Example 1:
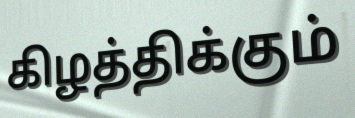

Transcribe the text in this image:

கிழத்திக்கும்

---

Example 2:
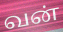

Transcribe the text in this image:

வன்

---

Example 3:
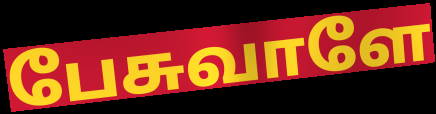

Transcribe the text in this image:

பேசுவாளே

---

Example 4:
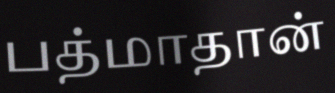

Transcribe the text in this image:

பத்மாதான்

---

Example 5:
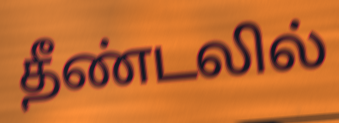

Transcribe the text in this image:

தீண்டலில்